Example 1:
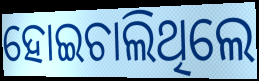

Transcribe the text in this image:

ହୋଇଚାଲିଥିଲେ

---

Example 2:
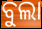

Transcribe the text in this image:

ବୁଲା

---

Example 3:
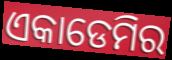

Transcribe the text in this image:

ଏକାଡେମିର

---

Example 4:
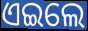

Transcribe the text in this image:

ଏଇଲେ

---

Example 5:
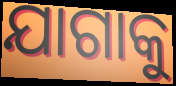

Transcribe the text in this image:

ଯାଗାକୁ